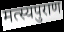
मत्स्यपुराण